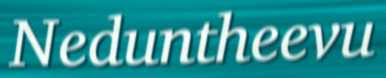
Neduntheevu